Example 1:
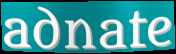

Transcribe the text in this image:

adnate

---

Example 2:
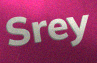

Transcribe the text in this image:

Srey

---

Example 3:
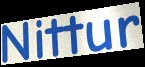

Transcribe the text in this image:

Nittur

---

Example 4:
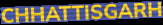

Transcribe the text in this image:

CHHATTISGARH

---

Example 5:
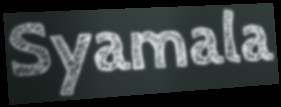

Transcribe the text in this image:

Syamala